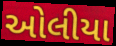
ઓલીયા